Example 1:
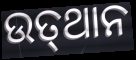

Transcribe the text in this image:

ଉତ୍‌ଥାନ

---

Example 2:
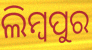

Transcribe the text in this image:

ଲିମ୍ବପୁର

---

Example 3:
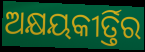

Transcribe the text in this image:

ଅକ୍ଷୟକୀର୍ତ୍ତିର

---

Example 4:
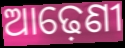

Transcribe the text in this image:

ଆଢ଼େଣୀ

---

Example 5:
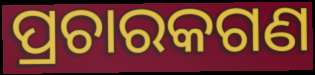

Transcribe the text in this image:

ପ୍ରଚାରକଗଣ